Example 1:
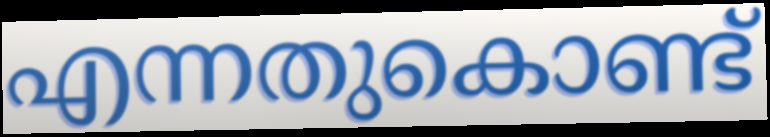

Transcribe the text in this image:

എന്നതുകൊണ്ട്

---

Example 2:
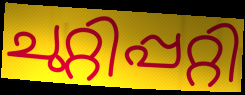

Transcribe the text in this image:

ചുറ്റിപ്പറ്റി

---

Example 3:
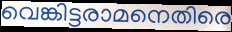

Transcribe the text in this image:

വെങ്കിട്ടരാമനെതിരെ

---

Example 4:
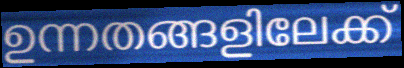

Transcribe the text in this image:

ഉന്നതങ്ങളിലേക്ക്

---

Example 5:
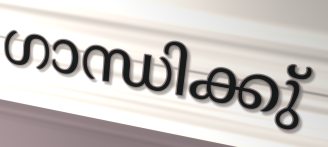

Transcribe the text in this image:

ഗാന്ധിക്കു്